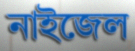
নাইজেল